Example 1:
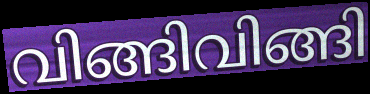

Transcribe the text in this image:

വിങ്ങിവിങ്ങി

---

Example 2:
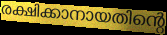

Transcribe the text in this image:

രക്ഷിക്കാനായതിന്റെ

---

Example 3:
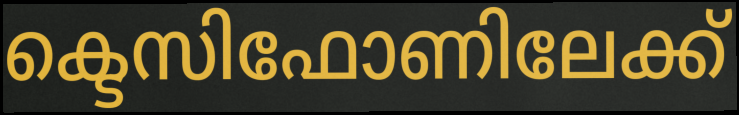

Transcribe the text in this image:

ക്ടെസിഫോണിലേക്ക്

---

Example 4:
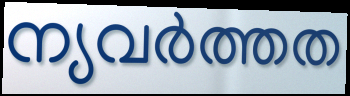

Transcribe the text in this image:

ന്യവർത്തത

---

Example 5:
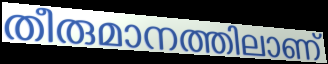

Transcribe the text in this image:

തീരുമാനത്തിലാണ്